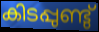
കിടപ്പുണ്ടു്